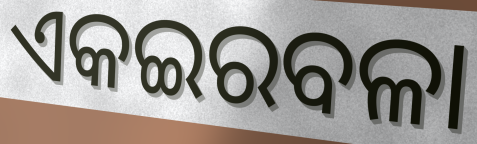
ଏକଇରବଳା